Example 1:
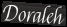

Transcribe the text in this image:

Doraleh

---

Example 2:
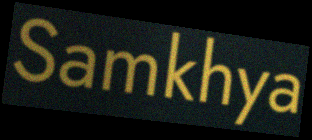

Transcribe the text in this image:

Samkhya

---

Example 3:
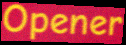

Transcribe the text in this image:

Opener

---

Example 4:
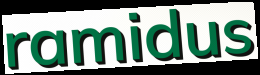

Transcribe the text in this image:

ramidus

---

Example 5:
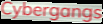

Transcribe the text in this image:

Cybergangs